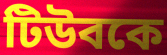
টিউবকে